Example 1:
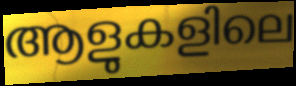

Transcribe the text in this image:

ആളുകളിലെ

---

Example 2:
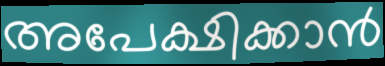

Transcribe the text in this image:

അപേക്ഷിക്കാൻ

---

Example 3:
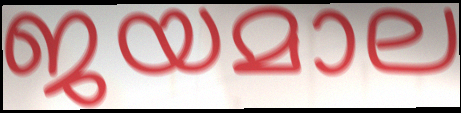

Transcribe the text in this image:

ജയമാല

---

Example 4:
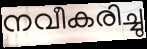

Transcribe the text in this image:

നവീകരിച്ചു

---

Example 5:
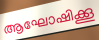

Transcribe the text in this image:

ആഘോഷിക്കൂ